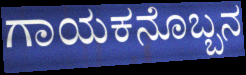
ಗಾಯಕನೊಬ್ಬನ